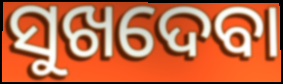
ସୁଖଦେବା